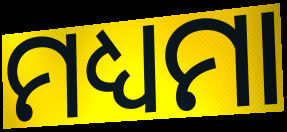
ମଧ୍ୟମା